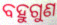
ବହୁଗୁଣ